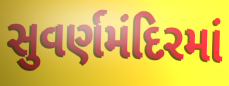
સુવર્ણમંદિરમાં